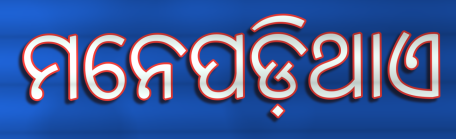
ମନେପଡ଼ିଥାଏ